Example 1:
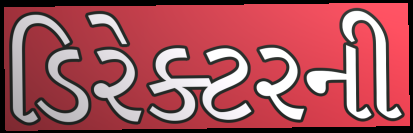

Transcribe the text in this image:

ડિરેક્ટરની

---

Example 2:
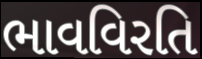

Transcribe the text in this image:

ભાવવિરતિ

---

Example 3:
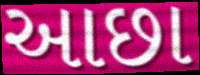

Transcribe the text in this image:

આછા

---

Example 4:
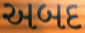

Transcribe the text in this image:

અબદ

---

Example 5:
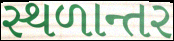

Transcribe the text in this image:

સ્થળાન્તર